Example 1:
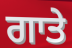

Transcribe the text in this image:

ਗਾਤੇ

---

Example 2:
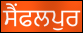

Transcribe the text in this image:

ਸੈਂਫਲਪੁਰ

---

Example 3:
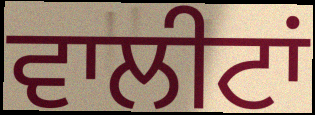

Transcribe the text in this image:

ਵਾਲੀਟਾਂ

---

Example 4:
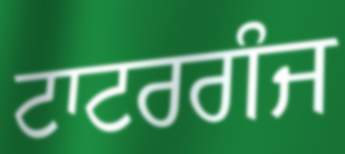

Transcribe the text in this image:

ਟਾਟਰਗੰਜ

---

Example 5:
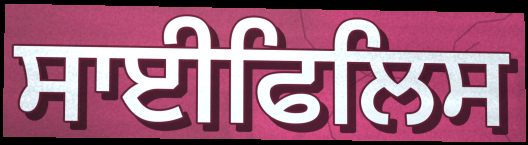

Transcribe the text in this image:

ਸਾਈਫਿਲਿਸ